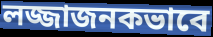
লজ্জাজনকভাবে